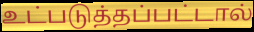
உட்படுத்தப்பட்டால்